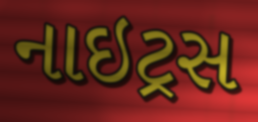
નાઇટ્રસ